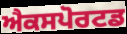
ਐਕਸਪੋਰਟਡ